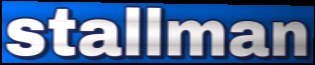
stallman